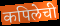
कपिलेची